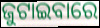
ଜୁଟାଇବାରେ